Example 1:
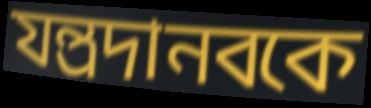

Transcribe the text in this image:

যন্ত্রদানবকে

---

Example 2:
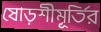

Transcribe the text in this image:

ষোড়শীমূর্তির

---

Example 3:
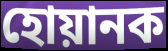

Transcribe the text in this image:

হোয়ানক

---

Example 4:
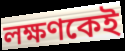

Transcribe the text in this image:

লক্ষণকেই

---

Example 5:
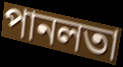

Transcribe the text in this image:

পানলতা